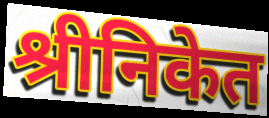
श्रीनिकेत